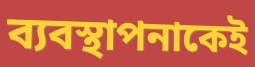
ব্যবস্থাপনাকেই